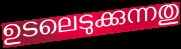
ഉടലെടുക്കുന്നതു